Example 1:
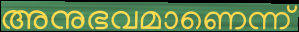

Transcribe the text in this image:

അനുഭവമാണെന്ന്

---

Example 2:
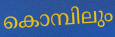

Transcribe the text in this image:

കൊമ്പിലും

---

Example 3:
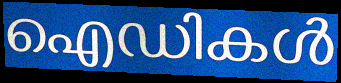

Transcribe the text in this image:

ഐഡികൾ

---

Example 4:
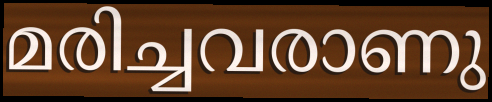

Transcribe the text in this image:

മരിച്ചവരാണു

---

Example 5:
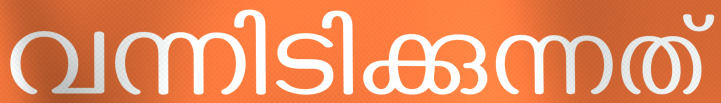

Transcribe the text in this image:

വന്നിടിക്കുന്നത്